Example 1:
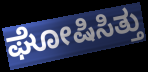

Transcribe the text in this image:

ಘೋಷಿಸಿತ್ತು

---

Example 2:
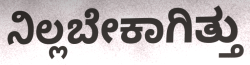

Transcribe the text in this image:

ನಿಲ್ಲಬೇಕಾಗಿತ್ತು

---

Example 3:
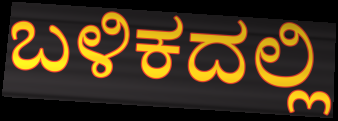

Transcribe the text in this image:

ಬಳಿಕದಲ್ಲಿ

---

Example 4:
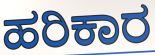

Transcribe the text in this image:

ಹರಿಕಾರ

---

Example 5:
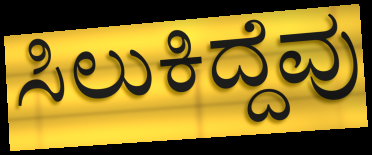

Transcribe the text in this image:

ಸಿಲುಕಿದ್ದೆವು